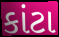
કાંટા